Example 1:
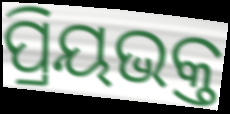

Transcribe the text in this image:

ପ୍ରିୟଭକ୍ତ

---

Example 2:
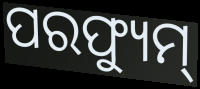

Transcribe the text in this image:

ପରଫ୍ୟୁମ୍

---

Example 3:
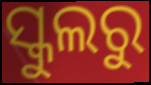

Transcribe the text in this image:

ସ୍କୁଲରୁ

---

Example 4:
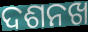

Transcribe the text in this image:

ଦଶନଖ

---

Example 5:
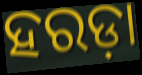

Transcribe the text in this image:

ହରଡ଼ା